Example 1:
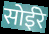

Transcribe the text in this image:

सोईरे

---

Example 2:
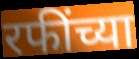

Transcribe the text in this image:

रफींच्या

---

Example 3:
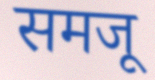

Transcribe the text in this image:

समजू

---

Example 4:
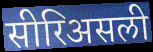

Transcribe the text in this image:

सीरिअसली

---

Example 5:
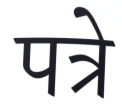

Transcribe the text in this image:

पत्रे